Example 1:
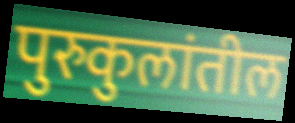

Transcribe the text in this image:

पुरुकुलांतील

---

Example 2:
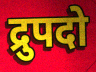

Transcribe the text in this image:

द्रुपदो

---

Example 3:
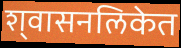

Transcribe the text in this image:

श्वासनलिकेत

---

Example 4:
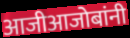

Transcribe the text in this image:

आजीआजोबांनी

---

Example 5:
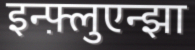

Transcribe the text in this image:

इन्फ़्लुएन्झा